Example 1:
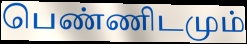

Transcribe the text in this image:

பெண்ணிடமும்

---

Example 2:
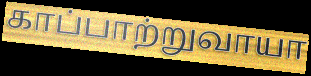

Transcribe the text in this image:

காப்பாற்றுவாயா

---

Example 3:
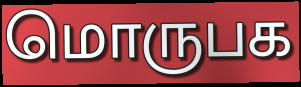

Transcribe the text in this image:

மொருபக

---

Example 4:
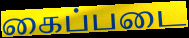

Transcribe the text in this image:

கைப்படை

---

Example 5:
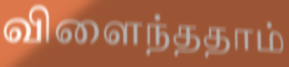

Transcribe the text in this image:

விளைந்ததாம்